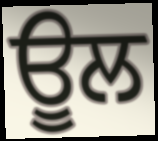
ਊਲ